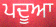
ਪਦੂਆ